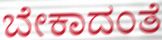
ಬೇಕಾದಂತೆ